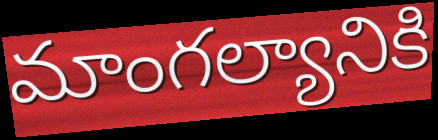
మాంగల్యానికి